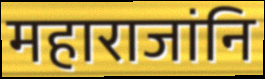
महाराजांनि